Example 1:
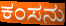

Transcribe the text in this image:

ಕಂಸನು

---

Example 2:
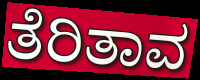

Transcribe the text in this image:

ತೆರಿತಾವ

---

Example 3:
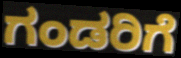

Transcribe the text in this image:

ಗಂಡರಿಗೆ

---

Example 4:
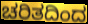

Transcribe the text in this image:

ಚರಿತದಿಂದ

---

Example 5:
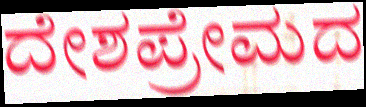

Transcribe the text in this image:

ದೇಶಪ್ರೇಮದ